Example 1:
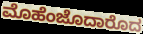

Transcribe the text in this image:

ಮೊಹೆಂಜೊದಾರೊದ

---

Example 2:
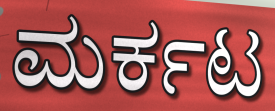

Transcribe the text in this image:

ಮರ್ಕಟ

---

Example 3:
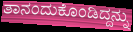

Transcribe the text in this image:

ತಾನಂದುಕೊಂಡಿದ್ದನ್ನು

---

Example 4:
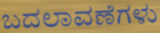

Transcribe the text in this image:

ಬದಲಾವಣೆಗಳು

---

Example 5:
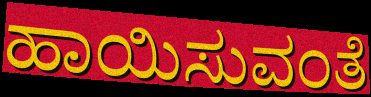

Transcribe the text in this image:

ಹಾಯಿಸುವಂತೆ